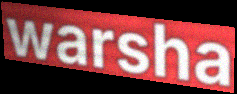
warsha